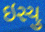
ઇસ્યુ